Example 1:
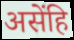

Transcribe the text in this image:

असेंहि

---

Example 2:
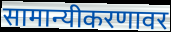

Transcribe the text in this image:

सामान्यीकरणावर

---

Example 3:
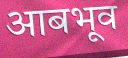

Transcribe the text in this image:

आबभूव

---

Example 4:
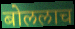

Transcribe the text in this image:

बोललाच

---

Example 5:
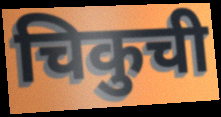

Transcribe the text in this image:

चिकुची